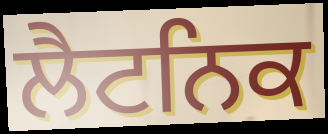
ਲੈਟਨਿਕ